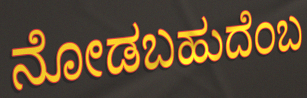
ನೋಡಬಹುದೆಂಬ